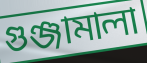
গুঞ্জামালা